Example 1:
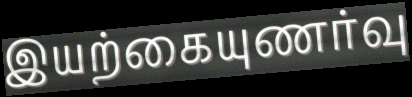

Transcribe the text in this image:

இயற்கையுணர்வு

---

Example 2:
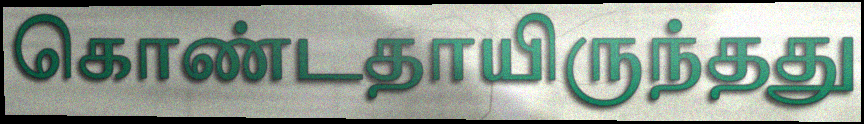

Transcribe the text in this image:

கொண்டதாயிருந்தது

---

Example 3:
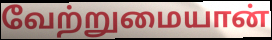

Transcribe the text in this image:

வேற்றுமையான்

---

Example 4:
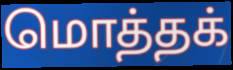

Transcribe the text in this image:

மொத்தக்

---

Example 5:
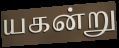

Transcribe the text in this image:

யகன்று